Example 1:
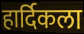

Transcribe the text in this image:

हार्दिकला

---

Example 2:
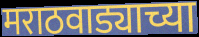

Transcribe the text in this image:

मराठवाड्याच्या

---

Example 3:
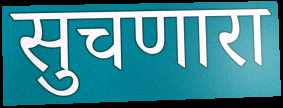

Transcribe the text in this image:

सुचणारा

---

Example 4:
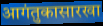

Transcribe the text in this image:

आगंतुकासारखा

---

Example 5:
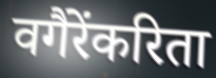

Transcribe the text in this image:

वगैरेंकरिता